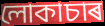
লোকাচাৰ